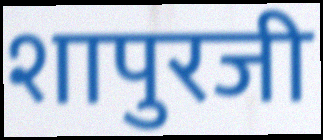
शापुरजी